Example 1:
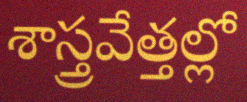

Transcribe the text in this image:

శాస్త్రవేత్తల్లో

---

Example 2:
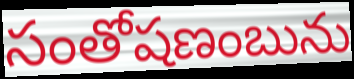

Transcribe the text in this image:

సంతోషణంబును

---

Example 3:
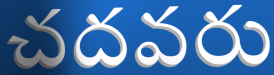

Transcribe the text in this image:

చదవరు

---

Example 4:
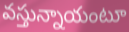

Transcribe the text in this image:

వస్తున్నాయంటూ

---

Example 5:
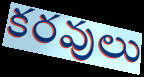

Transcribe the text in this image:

కరవులు